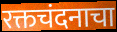
रक्तचंदनाचा